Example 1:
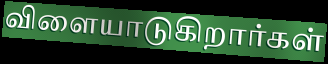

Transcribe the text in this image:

விளையாடுகிறார்கள்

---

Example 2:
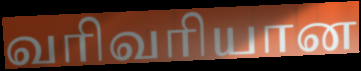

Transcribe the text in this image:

வரிவரியான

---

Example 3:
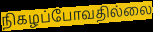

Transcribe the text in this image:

நிகழப்போவதில்லை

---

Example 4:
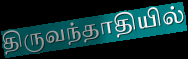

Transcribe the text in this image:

திருவந்தாதியில்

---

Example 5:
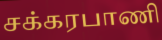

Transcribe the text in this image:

சக்கரபாணி